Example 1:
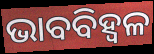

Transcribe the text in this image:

ଭାବବିହ୍ବଳ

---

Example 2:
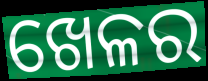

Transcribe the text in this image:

ଖେଳର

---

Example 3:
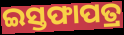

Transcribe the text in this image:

ଇସ୍ତଫାପତ୍ର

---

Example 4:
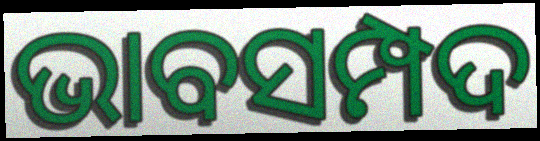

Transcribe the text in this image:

ଭାବସମ୍ପଦ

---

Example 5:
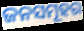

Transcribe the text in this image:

ଜନସମୂହର